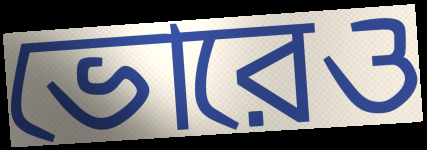
ভোরেও